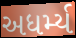
અધર્મ્ય